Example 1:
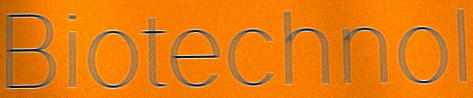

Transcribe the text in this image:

Biotechnol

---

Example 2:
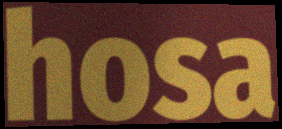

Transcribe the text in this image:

hosa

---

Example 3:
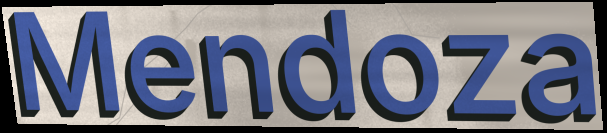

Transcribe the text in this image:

Mendoza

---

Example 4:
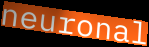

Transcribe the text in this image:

neuronal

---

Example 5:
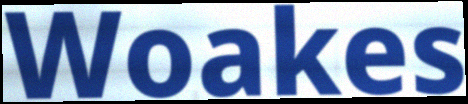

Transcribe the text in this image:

Woakes